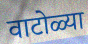
वाटोळ्या